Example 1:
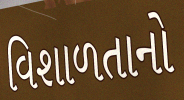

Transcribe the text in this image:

વિશાળતાનો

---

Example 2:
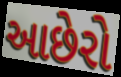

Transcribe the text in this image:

આછેરો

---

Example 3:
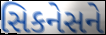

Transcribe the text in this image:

સિકનેસને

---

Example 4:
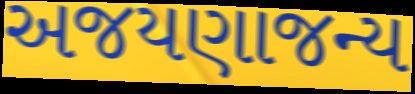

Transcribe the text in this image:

અજયણાજન્ય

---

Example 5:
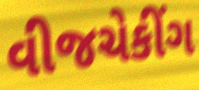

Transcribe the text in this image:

વીજચેકીંગ